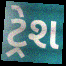
ટ્રેશ